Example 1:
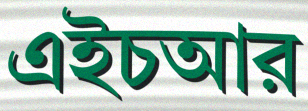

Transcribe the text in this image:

এইচআর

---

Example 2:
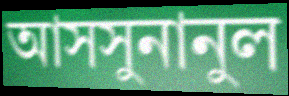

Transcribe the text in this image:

আসসুনানুল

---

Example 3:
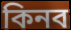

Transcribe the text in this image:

কিনব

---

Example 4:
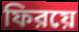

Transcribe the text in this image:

ফিরয়ে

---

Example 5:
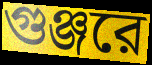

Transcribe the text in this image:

গুঞ্জরে